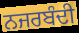
ਨਜਰਬੰਦੀ